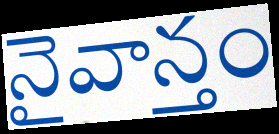
నైవాన్తం